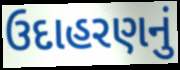
ઉદાહરણનું